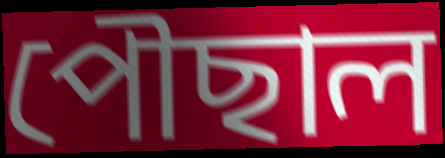
পৌছাল